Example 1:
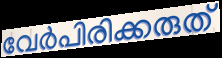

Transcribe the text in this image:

വേർപിരിക്കരുത്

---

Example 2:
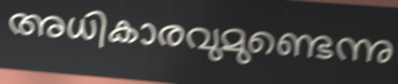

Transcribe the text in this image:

അധികാരവുമുണ്ടെന്നു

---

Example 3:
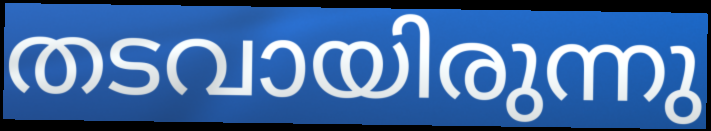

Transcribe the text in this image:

തടവായിരുന്നു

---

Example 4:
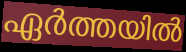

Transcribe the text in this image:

ഏർത്തയിൽ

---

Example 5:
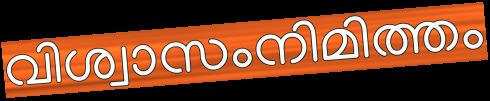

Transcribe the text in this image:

വിശ്വാസംനിമിത്തം